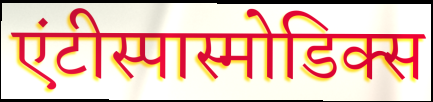
एंटीस्पास्मोडिक्स